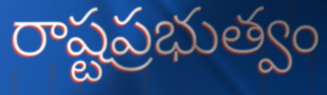
రాష్టప్రభుత్వం